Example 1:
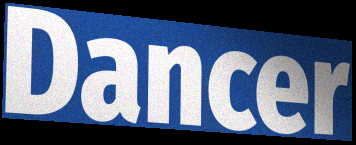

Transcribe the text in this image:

Dancer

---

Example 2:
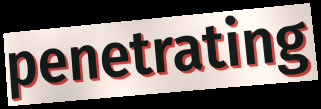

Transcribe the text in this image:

penetrating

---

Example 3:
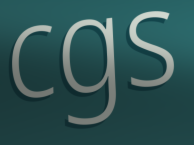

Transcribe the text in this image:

cgs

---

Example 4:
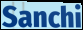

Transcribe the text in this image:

Sanchi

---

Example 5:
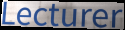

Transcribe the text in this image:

Lecturer